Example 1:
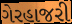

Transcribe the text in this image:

ગેરહાજરી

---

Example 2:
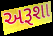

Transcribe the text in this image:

અરૂશા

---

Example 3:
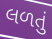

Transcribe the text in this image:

લળતું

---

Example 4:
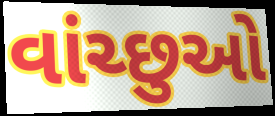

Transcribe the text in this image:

વાંચ્છુઓ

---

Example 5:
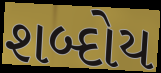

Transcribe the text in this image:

શબ્દોય